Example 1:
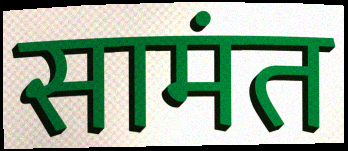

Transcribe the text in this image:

सामंत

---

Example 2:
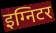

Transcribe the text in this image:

इग्निटर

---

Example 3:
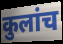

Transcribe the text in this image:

कुलांच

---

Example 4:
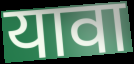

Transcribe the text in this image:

यावा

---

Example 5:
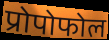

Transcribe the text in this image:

प्रोपोफोल